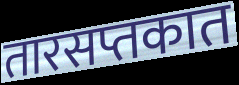
तारसप्तकात